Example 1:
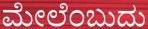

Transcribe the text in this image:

ಮೇಲೆಂಬುದು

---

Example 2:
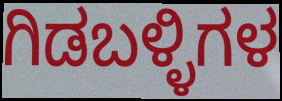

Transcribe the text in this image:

ಗಿಡಬಳ್ಳಿಗಳ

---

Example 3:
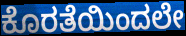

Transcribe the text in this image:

ಕೊರತೆಯಿಂದಲೇ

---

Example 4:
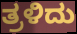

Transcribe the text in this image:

ತ್ರಳಿದು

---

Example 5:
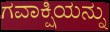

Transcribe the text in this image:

ಗವಾಕ್ಷಿಯನ್ನು